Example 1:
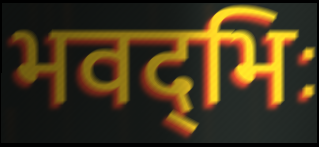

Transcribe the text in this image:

भवद्‌भिः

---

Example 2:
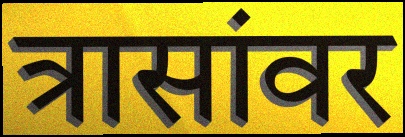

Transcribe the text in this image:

त्रासांवर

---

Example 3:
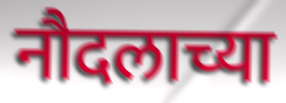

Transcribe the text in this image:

नौदलाच्या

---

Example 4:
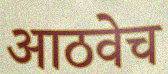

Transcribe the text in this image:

आठवेच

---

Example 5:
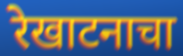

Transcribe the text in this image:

रेखाटनाचा